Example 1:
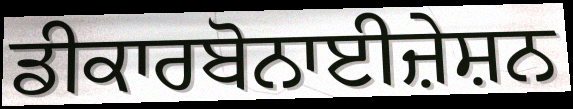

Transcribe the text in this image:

ਡੀਕਾਰਬੋਨਾਈਜ਼ੇਸ਼ਨ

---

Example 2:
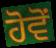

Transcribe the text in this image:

ਹੋਵੋਂ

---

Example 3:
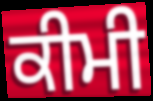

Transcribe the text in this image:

ਕੀਮੀ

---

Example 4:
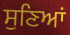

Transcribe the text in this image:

ਸੁਣਿਆਂ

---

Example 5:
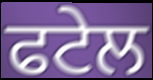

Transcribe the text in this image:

ਫਟੇਲ